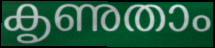
കൃണുതാം